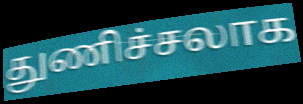
துணிச்சலாக